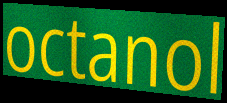
octanol